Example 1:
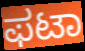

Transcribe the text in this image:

ಫಟಾ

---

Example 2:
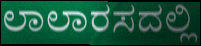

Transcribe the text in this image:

ಲಾಲಾರಸದಲ್ಲಿ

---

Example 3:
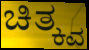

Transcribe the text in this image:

ಚಿತ್ಕ್ವ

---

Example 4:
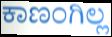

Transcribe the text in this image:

ಕಾಣಂಗಿಲ್ಲ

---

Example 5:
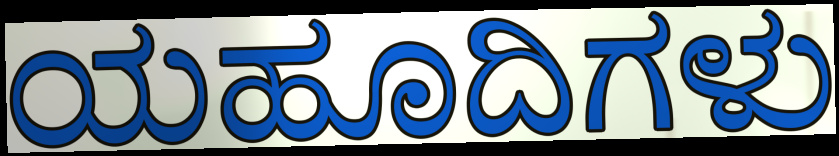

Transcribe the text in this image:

ಯಹೂದಿಗಳು